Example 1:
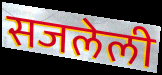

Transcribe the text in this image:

सजलेली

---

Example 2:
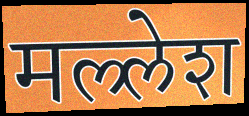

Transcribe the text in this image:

मल्लेश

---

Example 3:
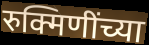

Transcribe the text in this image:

रुक्मिणींच्या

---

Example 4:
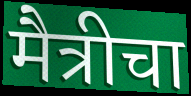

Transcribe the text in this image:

मैत्रीचा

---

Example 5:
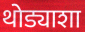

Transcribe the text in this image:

थोड्याशा